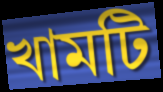
খামটি